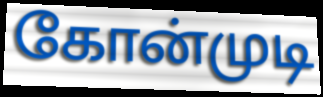
கோன்முடி